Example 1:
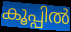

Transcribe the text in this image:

കൂപ്പിൽ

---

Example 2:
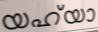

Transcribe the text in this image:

യഹ്‌യാ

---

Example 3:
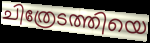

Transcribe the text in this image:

ചിത്രേടത്തിയെ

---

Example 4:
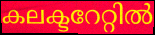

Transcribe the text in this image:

കലക്ടറേറ്റിൽ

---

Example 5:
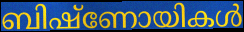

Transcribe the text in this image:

ബിഷ്ണോയികൾ